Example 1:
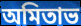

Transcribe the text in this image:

অমিতাভ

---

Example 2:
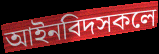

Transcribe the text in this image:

আইনবিদসকলে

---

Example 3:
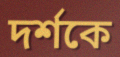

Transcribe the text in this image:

দৰ্শকে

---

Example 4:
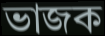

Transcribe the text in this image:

ভাজক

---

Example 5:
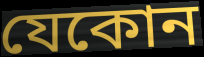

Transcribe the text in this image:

যেকোন